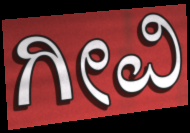
ಗೀವಿ